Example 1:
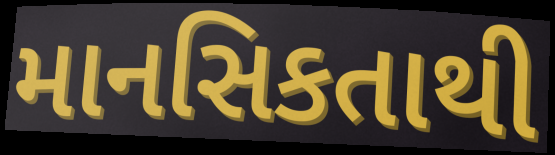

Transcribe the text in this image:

માનસિકતાથી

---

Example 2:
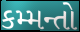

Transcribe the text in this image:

કમ્મન્તો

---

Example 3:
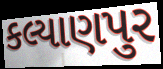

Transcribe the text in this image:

કલ્યાણપુર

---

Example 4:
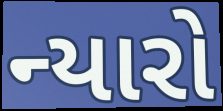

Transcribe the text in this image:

ન્યારો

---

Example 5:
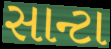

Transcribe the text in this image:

સાન્ટા